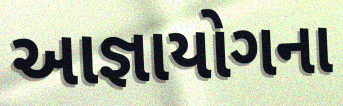
આજ્ઞાયોગના